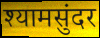
श्यामसुंदर